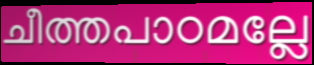
ചീത്തപാഠമല്ലേ